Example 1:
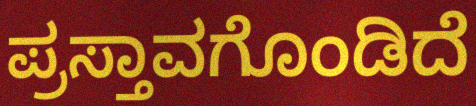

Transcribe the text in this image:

ಪ್ರಸ್ತಾವಗೊಂಡಿದೆ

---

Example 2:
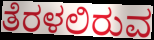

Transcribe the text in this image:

ತೆರಳಲಿರುವ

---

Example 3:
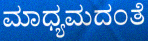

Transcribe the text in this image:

ಮಾಧ್ಯಮದಂತೆ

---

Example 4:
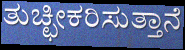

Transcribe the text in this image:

ತುಚ್ಛೀಕರಿಸುತ್ತಾನೆ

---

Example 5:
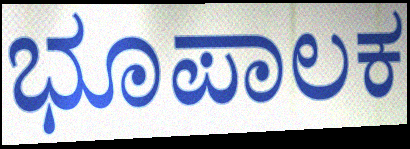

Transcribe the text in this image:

ಭೂಪಾಲಕ